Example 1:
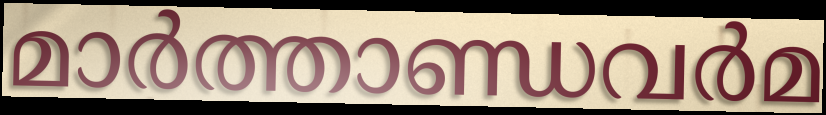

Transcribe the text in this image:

മാർത്താണ്ഡവർമ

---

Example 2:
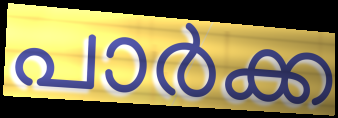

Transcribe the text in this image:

പാർക്ക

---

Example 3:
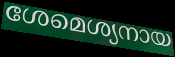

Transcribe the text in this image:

ശേമെശ്യനായ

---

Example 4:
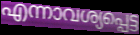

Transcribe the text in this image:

എന്നാവശ്യപ്പെട്ട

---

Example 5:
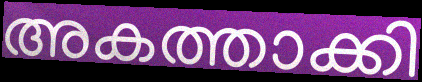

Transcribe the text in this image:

അകത്താക്കി